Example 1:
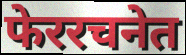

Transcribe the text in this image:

फेररचनेत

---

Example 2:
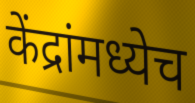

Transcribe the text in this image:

केंद्रांमध्येच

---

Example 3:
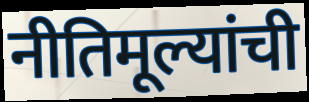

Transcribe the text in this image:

नीतिमूल्यांची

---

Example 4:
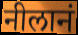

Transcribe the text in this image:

नीलानं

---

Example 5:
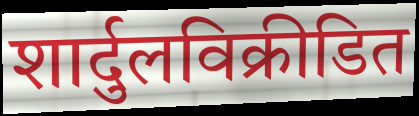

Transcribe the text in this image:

शार्दुलविक्रीडित